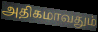
அதிகமாவதும்